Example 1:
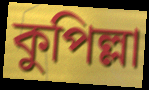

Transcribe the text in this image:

কুপিল্লা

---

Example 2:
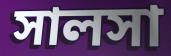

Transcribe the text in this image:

সালসা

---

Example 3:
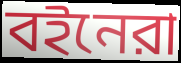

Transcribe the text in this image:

বইনেরা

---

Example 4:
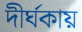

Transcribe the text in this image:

দীর্ঘকায়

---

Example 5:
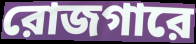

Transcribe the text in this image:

রোজগারে